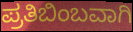
ಪ್ರತಿಬಿಂಬವಾಗಿ